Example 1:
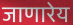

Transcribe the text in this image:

जाणारेय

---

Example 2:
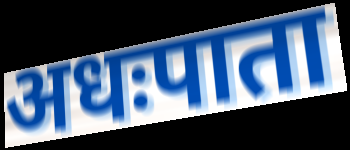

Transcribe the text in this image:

अधःपाता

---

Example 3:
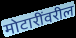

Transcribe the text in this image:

मोटारींवरील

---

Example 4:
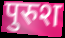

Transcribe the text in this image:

पुरुश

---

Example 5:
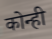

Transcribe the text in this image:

कोन्ही